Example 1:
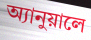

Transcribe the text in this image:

অ্যানুয়ালে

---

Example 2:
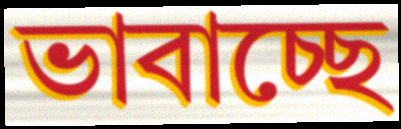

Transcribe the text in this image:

ভাবাচ্ছে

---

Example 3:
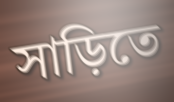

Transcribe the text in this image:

সাড়িতে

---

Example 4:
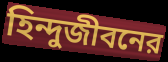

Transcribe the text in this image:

হিন্দুজীবনের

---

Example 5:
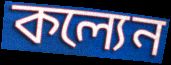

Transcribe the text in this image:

কল্যেন